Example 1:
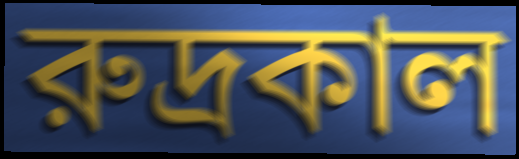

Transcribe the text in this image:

রুদ্রকাল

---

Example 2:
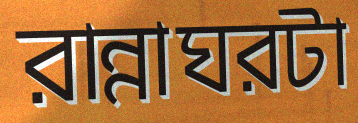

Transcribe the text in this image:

রান্নাঘরটা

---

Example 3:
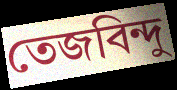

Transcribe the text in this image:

তেজবিন্দু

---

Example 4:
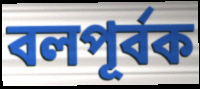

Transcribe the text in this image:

বলপূর্বক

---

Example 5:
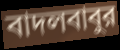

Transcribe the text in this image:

বাদলবাবুর